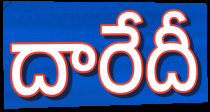
దారేదీ